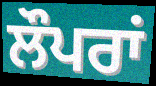
ਲੌਪਰਾਂ